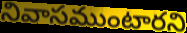
నివాసముంటారని